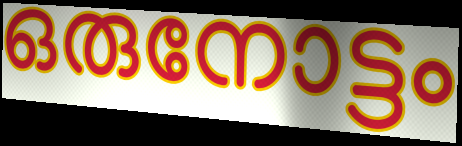
ഒരുനോട്ടം